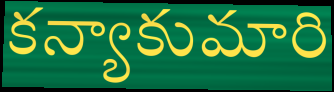
కన్యాకుమారి